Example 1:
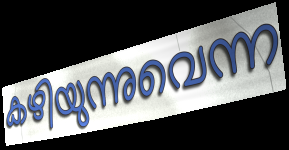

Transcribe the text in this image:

കഴിയുന്നുവെന്ന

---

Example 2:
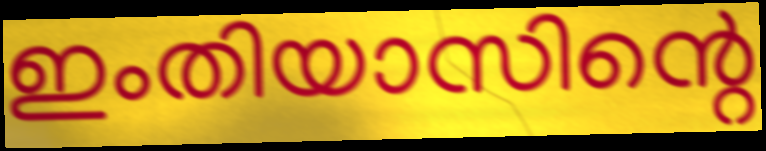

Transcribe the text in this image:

ഇംതിയാസിന്റെ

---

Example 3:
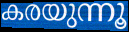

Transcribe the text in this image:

കരയുന്നൂ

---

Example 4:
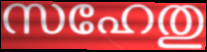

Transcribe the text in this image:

സഹേതു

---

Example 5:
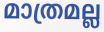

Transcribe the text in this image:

മാത്രമല്ല